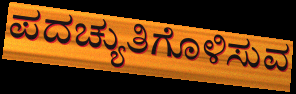
ಪದಚ್ಯುತಿಗೊಳಿಸುವ